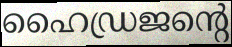
ഹൈഡ്രജന്റെ